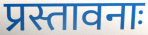
प्रस्तावनाः